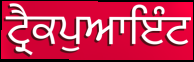
ਟ੍ਰੈਕਪੁਆਇੰਟ